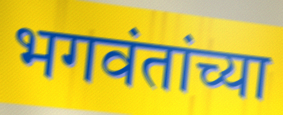
भगवंतांच्या